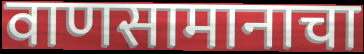
वाणसामानाचा